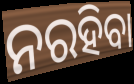
ନରହିବା